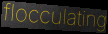
flocculating